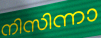
നിസിന്നാ